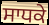
ਸਾਧਕੇ